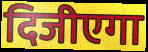
दिजीएगा